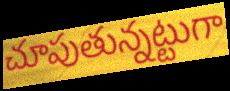
చూపుతున్నట్టుగా